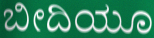
ಬೀದಿಯೂ